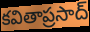
కవితాప్రసాద్